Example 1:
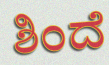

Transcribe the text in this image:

ಶಿಂದೆ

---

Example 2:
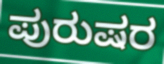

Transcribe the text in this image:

ಪುರುಷರ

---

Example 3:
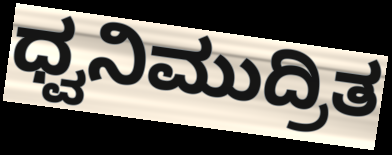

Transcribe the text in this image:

ಧ್ವನಿಮುದ್ರಿತ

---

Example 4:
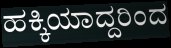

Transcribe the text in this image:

ಹಕ್ಕಿಯಾದ್ದರಿಂದ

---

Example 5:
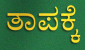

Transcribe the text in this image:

ತಾಪಕ್ಕೆ